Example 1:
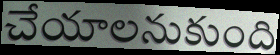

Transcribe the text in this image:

చేయాలనుకుంది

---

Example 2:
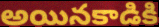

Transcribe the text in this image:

అయినకాడికి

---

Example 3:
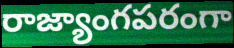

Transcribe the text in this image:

రాజ్యాంగపరంగా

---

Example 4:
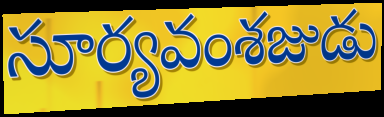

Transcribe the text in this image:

సూర్యవంశజుడు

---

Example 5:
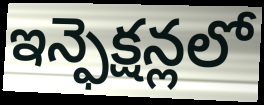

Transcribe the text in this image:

ఇన్ఫెక్షన్లలో